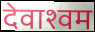
देवाश्वम